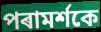
পৰামৰ্শকে